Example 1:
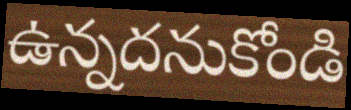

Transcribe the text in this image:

ఉన్నదనుకోండి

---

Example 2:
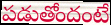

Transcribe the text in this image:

పడుతోందంటే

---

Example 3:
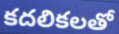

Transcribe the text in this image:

కదలికలతో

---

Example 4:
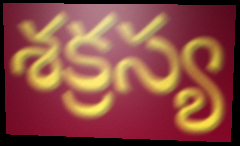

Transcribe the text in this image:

శక్రస్య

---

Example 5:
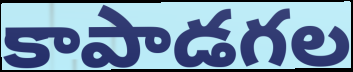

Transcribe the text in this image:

కాపాడగల